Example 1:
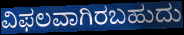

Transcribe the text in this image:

ವಿಫಲವಾಗಿರಬಹುದು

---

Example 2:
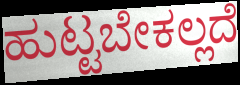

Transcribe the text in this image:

ಹುಟ್ಟಬೇಕಲ್ಲದೆ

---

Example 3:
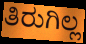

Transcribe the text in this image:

ತಿರುಗಿಲ್ಲ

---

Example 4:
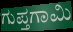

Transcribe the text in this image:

ಗುಪ್ತಗಾಮಿ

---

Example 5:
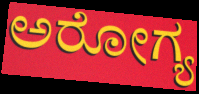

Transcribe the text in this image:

ಅರೋಗ್ಯ